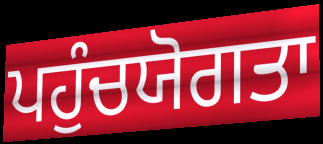
ਪਹੁੰਚਯੋਗਤਾ